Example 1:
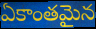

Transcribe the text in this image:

ఏకాంతమైన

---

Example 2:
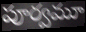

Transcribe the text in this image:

పూర్వమూ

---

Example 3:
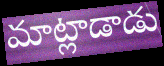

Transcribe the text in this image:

మాట్లాడాడు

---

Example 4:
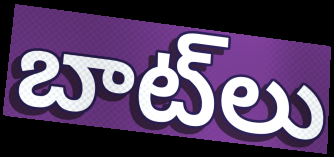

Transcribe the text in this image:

బాట్‌లు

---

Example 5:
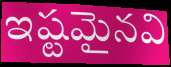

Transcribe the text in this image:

ఇష్టమైనవి